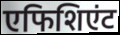
एफिशिएंट